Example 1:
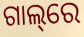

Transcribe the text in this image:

ଗାଲ୍‌ରେ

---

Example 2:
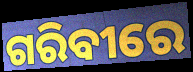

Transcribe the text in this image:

ଗରିବୀରେ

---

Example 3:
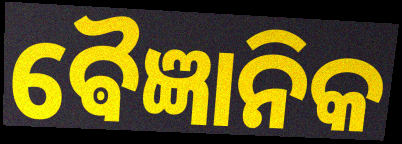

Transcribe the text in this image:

ଵୈଜ୍ଞାନିକ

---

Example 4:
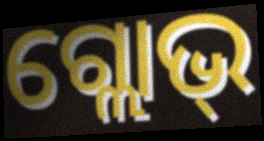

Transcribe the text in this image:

ଗ୍ଲୋଭ୍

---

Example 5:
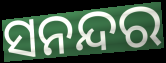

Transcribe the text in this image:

ସନନ୍ଦର